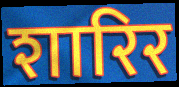
शारिर